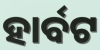
ହାର୍ବଟ